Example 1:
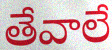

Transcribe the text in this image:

తేవాలే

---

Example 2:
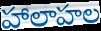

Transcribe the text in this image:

హాలాహల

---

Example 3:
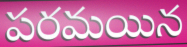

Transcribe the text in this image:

పరమయిన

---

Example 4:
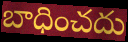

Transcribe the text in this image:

బాధించదు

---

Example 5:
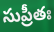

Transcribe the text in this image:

సుప్రీతః